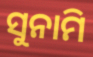
ସୁନାମି